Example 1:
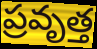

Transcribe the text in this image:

ప్రవృత్త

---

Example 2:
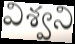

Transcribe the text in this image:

విశ్వని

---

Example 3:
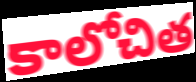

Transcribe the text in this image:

కాలోచిత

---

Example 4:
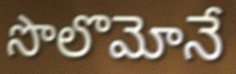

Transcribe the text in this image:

సొలొమోనే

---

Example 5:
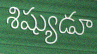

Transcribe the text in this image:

శిష్యుడూ